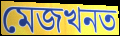
মেজখনত